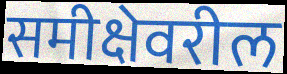
समीक्षेवरील